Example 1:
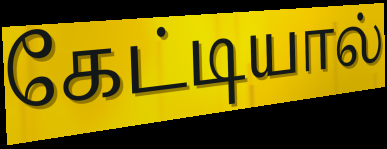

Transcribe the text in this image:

கேட்டியால்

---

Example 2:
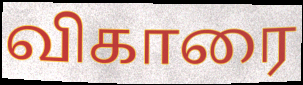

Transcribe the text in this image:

விகாரை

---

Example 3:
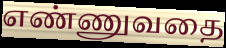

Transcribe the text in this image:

எண்ணுவதை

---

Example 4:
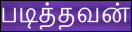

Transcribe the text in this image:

படித்தவன்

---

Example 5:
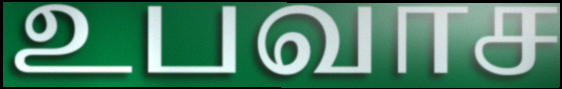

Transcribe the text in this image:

உபவாச